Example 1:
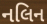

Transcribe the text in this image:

નલિન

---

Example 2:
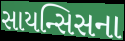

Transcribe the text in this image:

સાયન્સિસના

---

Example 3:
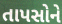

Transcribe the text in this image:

તાપસોને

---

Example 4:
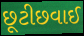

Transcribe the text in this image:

છૂટીછવાઈ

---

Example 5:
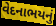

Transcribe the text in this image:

વેદનાભયનું